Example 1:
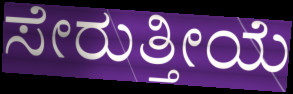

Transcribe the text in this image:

ಸೇರುತ್ತೀಯೆ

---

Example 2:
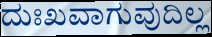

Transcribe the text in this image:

ದುಃಖವಾಗುವುದಿಲ್ಲ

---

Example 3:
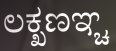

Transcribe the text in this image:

ಲಕ್ಖಣಞ್ಚ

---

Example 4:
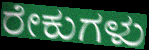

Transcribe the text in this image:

ರೇಕುಗಳು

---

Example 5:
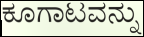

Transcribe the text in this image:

ಕೂಗಾಟವನ್ನು